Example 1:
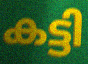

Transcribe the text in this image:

കട്ടി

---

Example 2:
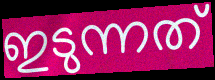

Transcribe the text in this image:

ഇടുന്നത്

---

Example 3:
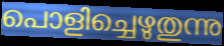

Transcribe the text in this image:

പൊളിച്ചെഴുതുന്നു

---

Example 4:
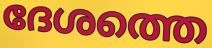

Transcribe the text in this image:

ദേശത്തെ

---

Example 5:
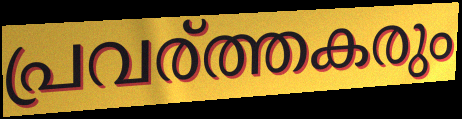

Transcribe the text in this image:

പ്രവര്ത്തകരും